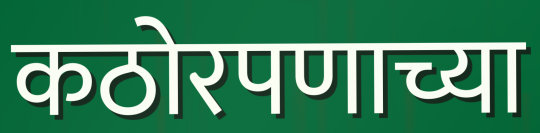
कठोरपणाच्या